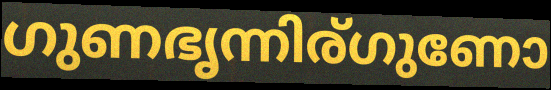
ഗുണഭൃന്നിര്ഗുണോ